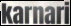
karnari